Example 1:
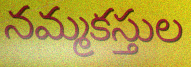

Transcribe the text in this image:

నమ్మకస్తుల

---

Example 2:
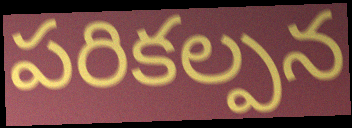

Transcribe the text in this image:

పరికల్పన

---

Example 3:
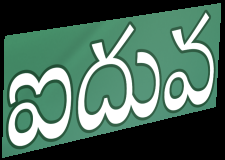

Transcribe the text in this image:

ఐదువ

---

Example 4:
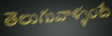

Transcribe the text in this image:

తెలుగువాళ్ళంటే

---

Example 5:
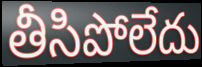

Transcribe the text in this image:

తీసిపోలేదు